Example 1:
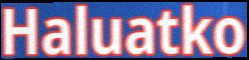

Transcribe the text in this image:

Haluatko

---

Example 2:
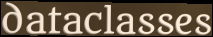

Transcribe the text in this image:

dataclasses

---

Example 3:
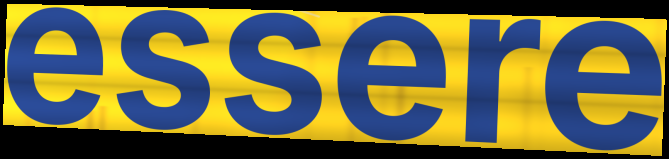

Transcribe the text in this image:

essere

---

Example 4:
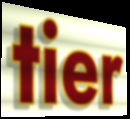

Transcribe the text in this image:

tier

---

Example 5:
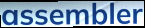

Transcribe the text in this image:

assembler